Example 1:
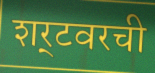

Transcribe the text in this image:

शर्टवरची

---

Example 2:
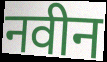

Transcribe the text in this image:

नवीन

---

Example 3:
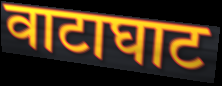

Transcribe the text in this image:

वाटाघाट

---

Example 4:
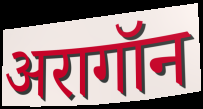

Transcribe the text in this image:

अरागॉन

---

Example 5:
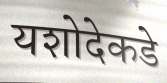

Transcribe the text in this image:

यशोदेकडे